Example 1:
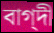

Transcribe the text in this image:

বাগ্‌দী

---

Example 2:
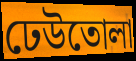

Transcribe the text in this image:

ঢেউতোলা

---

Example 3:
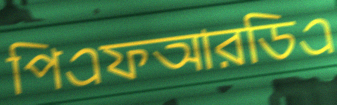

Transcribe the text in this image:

পিএফআরডিএ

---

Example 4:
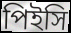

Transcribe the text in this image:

পিইসি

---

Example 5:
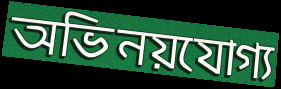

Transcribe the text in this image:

অভিনয়যোগ্য